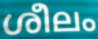
ശീലം